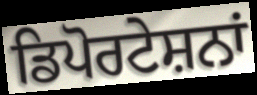
ਡਿਪੋਰਟੇਸ਼ਨਾਂ